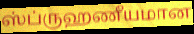
ஸ்ப்ருஹணீயமான